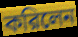
করিলেন